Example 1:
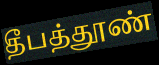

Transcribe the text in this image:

தீபத்தூண்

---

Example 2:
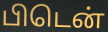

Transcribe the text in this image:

பிடென்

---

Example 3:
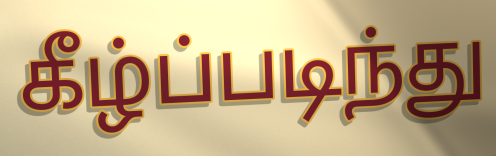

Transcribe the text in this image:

கீழ்ப்படிந்து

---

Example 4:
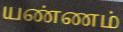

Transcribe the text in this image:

யண்ணம்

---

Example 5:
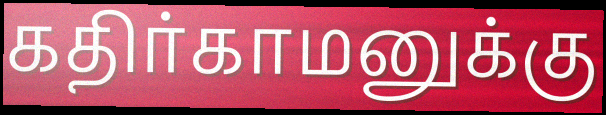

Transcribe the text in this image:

கதிர்காமனுக்கு